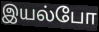
இயல்போ